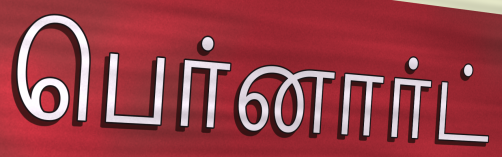
பெர்னார்ட்